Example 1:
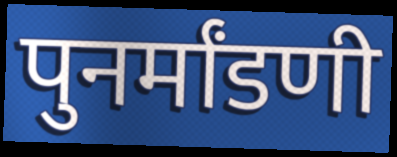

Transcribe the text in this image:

पुनर्मांडणी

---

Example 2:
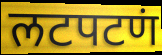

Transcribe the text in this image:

लटपटणं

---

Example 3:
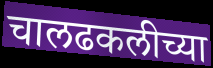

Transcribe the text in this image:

चालढकलीच्या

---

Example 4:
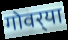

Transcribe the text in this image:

गोवर्‍या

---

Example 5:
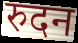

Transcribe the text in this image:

रुदन